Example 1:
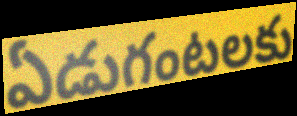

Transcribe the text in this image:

ఏడుగంటలకు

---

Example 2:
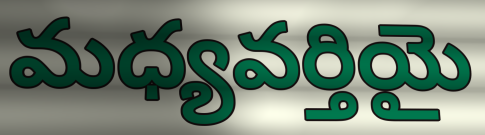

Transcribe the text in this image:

మధ్యవర్తియై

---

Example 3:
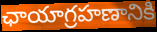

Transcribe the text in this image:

ఛాయాగ్రహణానికి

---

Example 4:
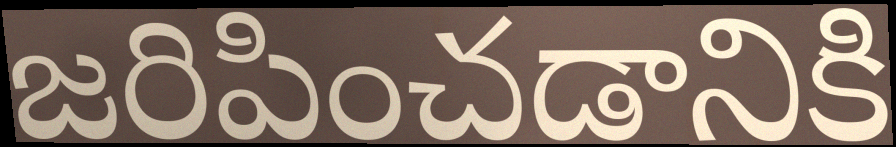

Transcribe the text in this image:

జరిపించడానికి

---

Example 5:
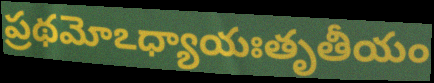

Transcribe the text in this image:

ప్రథమోఽధ్యాయఃతృతీయం